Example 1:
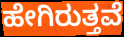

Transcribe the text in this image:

ಹೇಗಿರುತ್ತವೆ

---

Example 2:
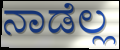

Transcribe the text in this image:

ನಾಡೆಲ್ಲ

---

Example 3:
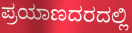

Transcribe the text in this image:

ಪ್ರಯಾಣದರದಲ್ಲಿ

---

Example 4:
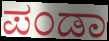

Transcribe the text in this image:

ಪಂಡಾ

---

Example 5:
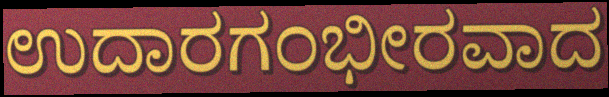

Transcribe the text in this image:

ಉದಾರಗಂಭೀರವಾದ